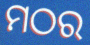
ମଠର